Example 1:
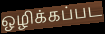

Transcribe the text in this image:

ஒழிக்கப்பட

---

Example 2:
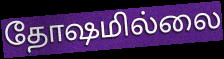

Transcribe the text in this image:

தோஷமில்லை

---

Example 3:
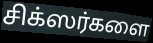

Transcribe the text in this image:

சிக்ஸர்களை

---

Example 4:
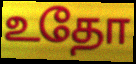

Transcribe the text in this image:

உதோ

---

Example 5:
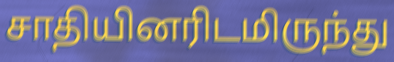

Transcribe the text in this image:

சாதியினரிடமிருந்து